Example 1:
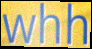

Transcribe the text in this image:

whh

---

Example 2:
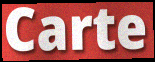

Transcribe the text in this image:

Carte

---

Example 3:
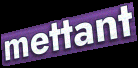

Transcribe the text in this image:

mettant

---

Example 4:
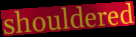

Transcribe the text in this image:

shouldered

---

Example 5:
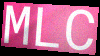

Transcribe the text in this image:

MLC